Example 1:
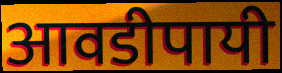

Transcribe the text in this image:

आवडीपायी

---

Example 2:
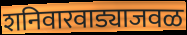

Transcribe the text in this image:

शनिवारवाड्याजवळ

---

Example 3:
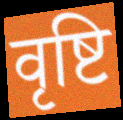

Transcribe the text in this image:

वृष्टि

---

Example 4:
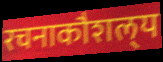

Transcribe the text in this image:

रचनाकौशल्य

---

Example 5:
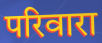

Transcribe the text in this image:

परिवारा